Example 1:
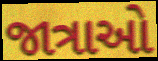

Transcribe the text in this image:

જાત્રાઓ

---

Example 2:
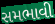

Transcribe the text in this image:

સમભાવી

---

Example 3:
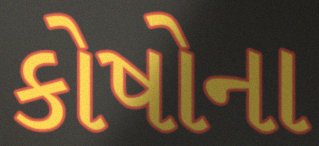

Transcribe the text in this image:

કોષોના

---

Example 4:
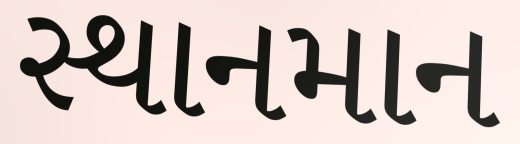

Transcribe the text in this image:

સ્થાનમાન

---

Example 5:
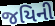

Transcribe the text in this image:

જયિની